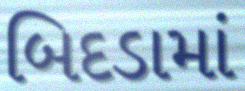
બિદડામાં